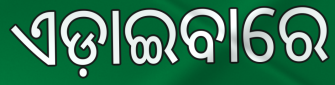
ଏଡ଼ାଇବାରେ